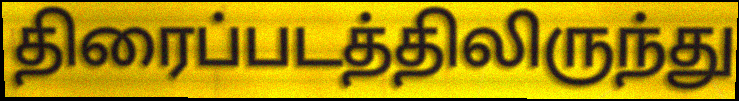
திரைப்படத்திலிருந்து